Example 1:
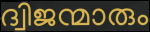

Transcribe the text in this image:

ദ്വിജന്മാരും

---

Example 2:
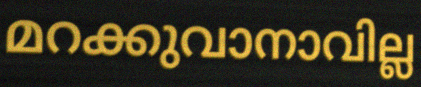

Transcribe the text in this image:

മറക്കുവാനാവില്ല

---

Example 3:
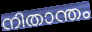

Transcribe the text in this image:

നിതാന്തം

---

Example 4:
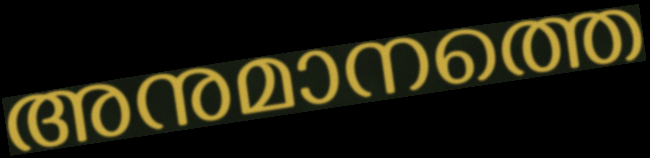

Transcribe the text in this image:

അനുമാനത്തെ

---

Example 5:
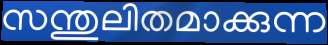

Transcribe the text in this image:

സന്തുലിതമാക്കുന്ന